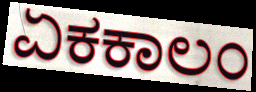
ಏಕಕಾಲಂ